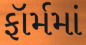
ફૉર્મમાં